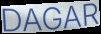
DAGAR